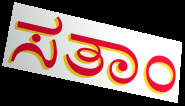
ಸತಾಂ